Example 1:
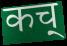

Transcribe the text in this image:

कच्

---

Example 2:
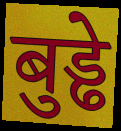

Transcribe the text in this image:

बुड्ढे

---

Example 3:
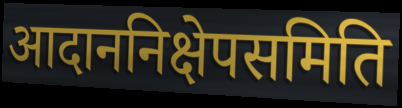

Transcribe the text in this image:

आदाननिक्षेपसमिति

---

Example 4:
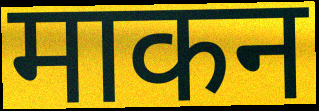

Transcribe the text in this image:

माकन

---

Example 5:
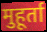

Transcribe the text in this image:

मुहूर्ता